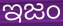
ఇజం